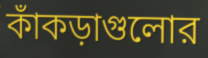
কাঁকড়াগুলোর